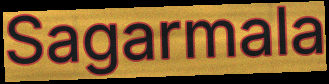
Sagarmala